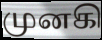
முனகி